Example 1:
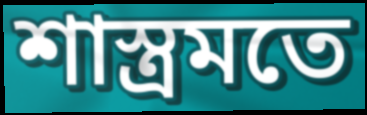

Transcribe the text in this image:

শাস্ত্রমতে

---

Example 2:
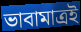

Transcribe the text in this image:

ভাবামাত্রই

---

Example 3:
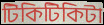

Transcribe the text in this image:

টিকিটিকিটা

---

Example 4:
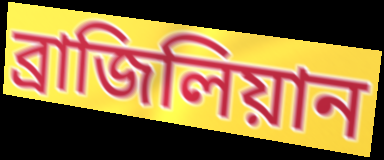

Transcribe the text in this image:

ব্রাজিলিয়ান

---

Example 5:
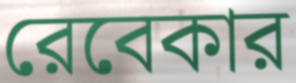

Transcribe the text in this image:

রেবেকার